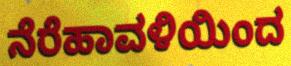
ನೆರೆಹಾವಳಿಯಿಂದ